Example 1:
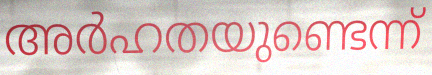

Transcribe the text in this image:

അർഹതയുണ്ടെന്ന്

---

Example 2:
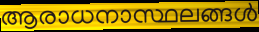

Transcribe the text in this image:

ആരാധനാസ്ഥലങ്ങൾ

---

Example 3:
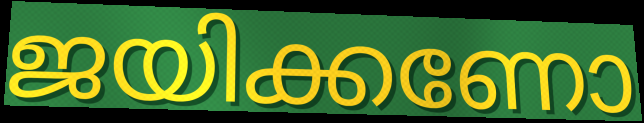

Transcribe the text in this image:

ജയിക്കണോ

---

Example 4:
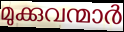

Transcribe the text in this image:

മുക്കുവന്മാർ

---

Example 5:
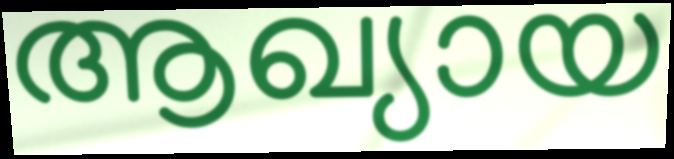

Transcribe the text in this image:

ആഖ്യായ